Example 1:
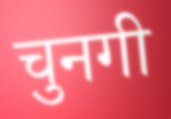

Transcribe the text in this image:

चुनगी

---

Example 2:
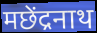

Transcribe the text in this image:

मछेंद्रनाथ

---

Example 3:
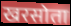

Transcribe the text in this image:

खरसोता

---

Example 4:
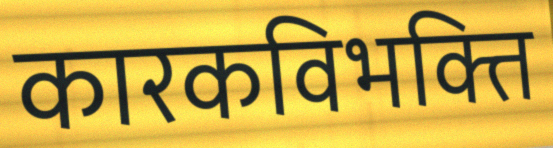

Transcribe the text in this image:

कारकविभक्ति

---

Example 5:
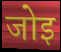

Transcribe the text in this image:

जोइ